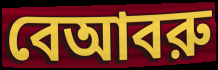
বেআবরু